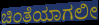
ಚಿಂತೆಯಾಗಲೀ